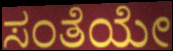
ಸಂತೆಯೇ